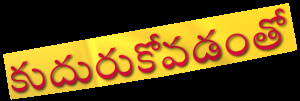
కుదురుకోవడంతో